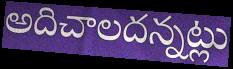
అదిచాలదన్నట్లు